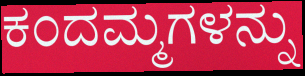
ಕಂದಮ್ಮಗಳನ್ನು